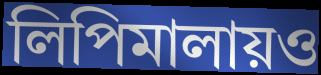
লিপিমালায়ও